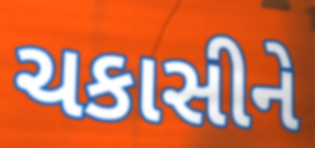
ચકાસીને